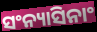
ସଂନ୍ୟାସିନାଂ